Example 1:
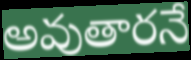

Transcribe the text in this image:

అవుతారనే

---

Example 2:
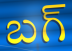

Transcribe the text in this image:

బగ్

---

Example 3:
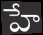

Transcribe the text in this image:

హే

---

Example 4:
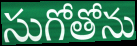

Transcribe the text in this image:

సుగోతోను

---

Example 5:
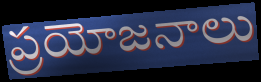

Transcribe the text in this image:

ప్రయోజనాలు